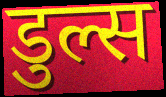
डुल्स